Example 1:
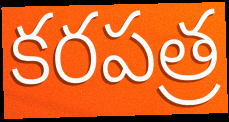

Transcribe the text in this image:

కరపత్ర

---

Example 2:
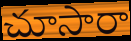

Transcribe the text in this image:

చూసారా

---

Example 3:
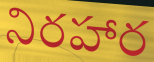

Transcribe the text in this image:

నిరహార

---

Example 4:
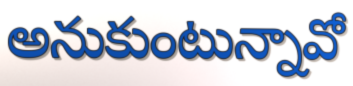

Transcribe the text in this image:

అనుకుంటున్నావో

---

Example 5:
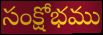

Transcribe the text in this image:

సంక్షోభము